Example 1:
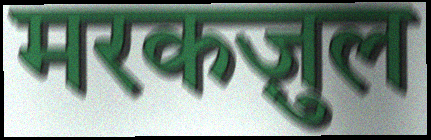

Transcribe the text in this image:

मरकज़ुल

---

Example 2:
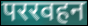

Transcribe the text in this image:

पररवहन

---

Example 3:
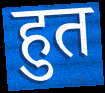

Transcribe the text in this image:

हुत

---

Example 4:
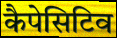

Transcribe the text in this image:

कैपेसिटिव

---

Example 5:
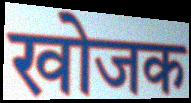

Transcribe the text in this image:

खोजक